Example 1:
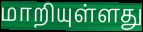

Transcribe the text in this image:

மாறியுள்ளது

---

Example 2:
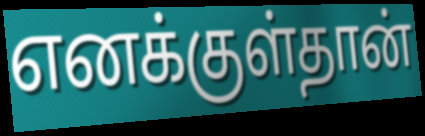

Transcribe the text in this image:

எனக்குள்தான்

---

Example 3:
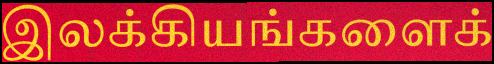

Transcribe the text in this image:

இலக்கியங்களைக்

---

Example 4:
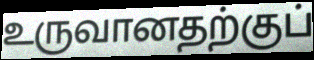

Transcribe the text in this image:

உருவானதற்குப்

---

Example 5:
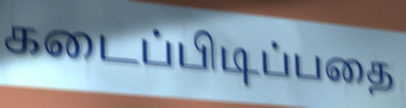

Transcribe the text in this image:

கடைப்பிடிப்பதை